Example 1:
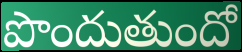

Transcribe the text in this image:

పొందుతుందో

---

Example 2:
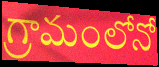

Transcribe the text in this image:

గ్రామంలోనో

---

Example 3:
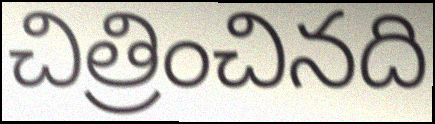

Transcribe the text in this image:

చిత్రించినది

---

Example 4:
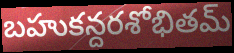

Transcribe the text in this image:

బహుకన్దరశోభితమ్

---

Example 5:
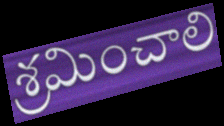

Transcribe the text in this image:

శ్రమించాలి